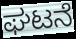
ಘಟನೆ